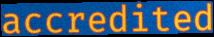
accredited